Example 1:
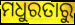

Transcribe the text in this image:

ମଧୁରତାରୁ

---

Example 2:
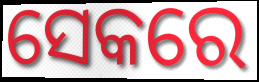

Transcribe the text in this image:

ସେକରେ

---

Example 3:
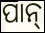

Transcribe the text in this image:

ପାନ୍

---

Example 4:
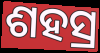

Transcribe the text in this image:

ଶହସ୍ର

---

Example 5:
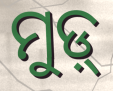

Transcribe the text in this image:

ମୁଡ଼୍